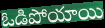
ఓడిపోయాయి